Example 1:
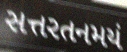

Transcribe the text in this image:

સત્તરતનમયં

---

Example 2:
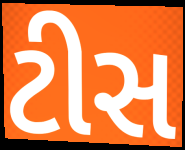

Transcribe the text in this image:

ટીસ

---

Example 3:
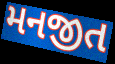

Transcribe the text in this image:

મનજીત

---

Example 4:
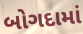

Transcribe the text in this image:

બોગદામાં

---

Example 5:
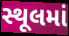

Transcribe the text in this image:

સ્થૂલમાં